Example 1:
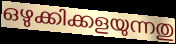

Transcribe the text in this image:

ഒഴുക്കിക്കളയുന്നതു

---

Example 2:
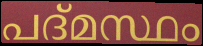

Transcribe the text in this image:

പദ്മസ്ഥം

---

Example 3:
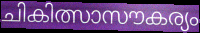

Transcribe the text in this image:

ചികിത്സാസൗകര്യം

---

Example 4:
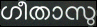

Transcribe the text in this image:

ഗീതാസു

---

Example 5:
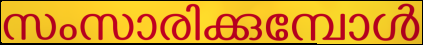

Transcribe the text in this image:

സംസാരിക്കുമ്പോൾ